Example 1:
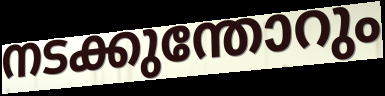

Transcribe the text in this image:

നടക്കുന്തോറും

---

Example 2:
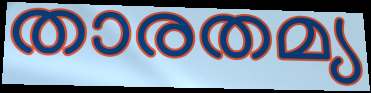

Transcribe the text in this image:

താരതമ്യ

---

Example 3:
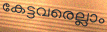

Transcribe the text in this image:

കേട്ടവരെല്ലാം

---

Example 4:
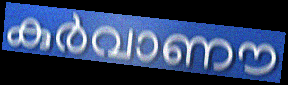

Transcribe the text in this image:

കുർവാണൗ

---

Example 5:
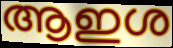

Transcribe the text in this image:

ആഇശ